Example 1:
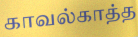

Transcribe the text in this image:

காவல்காத்த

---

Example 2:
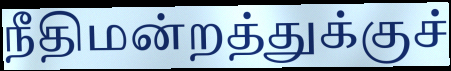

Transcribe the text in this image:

நீதிமன்றத்துக்குச்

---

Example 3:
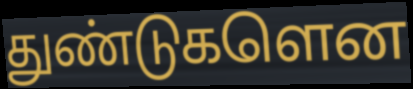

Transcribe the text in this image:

துண்டுகளென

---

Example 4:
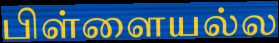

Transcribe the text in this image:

பிள்ளையல்ல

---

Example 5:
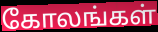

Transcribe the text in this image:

கோலங்கள்